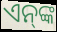
ଏନ୍‌ଙ୍କ